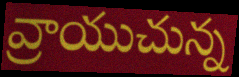
వ్రాయుచున్న